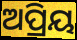
ଅପ୍ରିୟ